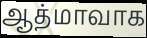
ஆத்மாவாக